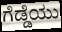
ಗೆಡ್ಡೆಯು